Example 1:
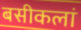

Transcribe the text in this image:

बसीकलां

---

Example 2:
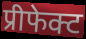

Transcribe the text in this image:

प्रीफेक्ट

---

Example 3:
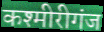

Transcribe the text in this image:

कश्मीरीगंज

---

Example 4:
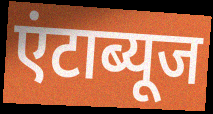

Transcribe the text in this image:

एंटाब्यूज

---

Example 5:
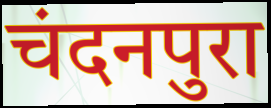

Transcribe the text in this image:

चंदनपुरा